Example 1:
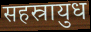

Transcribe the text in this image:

सहस्रायुध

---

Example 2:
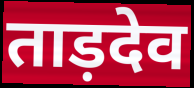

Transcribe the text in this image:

ताड़देव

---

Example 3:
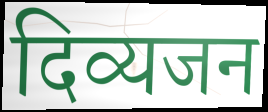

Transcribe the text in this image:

दिव्यजन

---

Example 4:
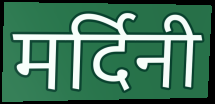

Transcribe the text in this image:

मर्दिनी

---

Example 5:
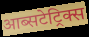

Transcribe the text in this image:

आब्सटेट्रिक्स